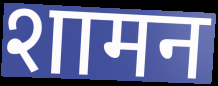
शामन